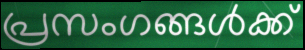
പ്രസംഗങ്ങൾക്ക്